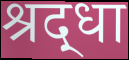
श्रद्धा